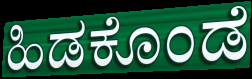
ಹಿಡಕೊಂಡೆ